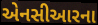
એનસીઆરના